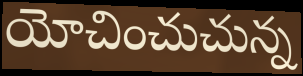
యోచించుచున్న